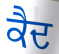
ਕੈਦ